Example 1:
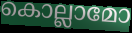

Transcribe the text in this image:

കൊല്ലാമോ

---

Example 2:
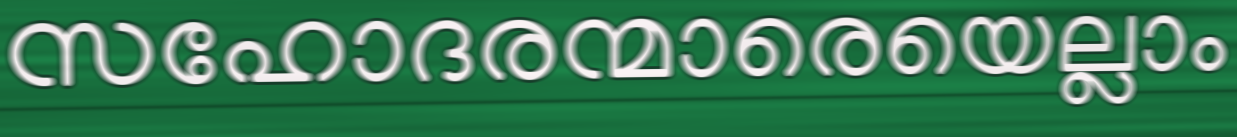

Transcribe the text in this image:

സഹോദരന്മാരെയെല്ലാം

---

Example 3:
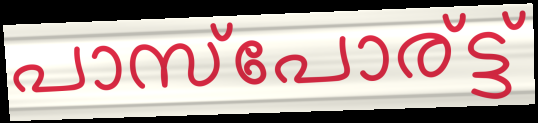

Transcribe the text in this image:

പാസ്പോര്ട്ട്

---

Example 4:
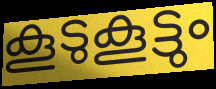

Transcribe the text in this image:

കൂടുകൂട്ടും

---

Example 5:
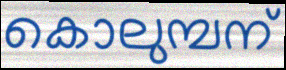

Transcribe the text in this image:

കൊലുമ്പന്